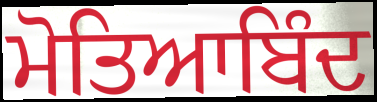
ਮੋਤਿਆਬਿੰਦ